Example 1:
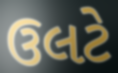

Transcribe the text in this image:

ઉલટે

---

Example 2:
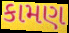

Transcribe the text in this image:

કામણ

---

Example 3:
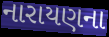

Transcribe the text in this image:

નારાયણના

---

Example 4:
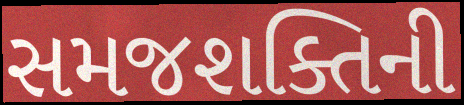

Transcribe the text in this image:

સમજશક્તિની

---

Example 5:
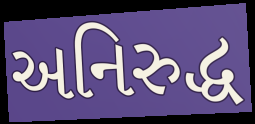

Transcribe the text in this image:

અનિરુદ્ધ